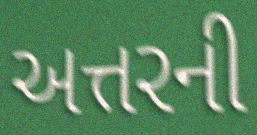
અત્તરની